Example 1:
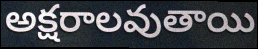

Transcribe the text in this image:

అక్షరాలవుతాయి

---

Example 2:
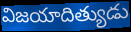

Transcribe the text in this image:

విజయాదిత్యుడు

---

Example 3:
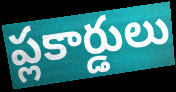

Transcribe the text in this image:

ప్లకార్డులు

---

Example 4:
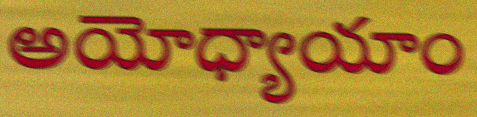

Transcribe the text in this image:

అయోధ్యాయాం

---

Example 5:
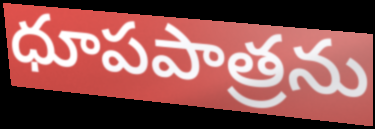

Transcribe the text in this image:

ధూపపాత్రను